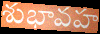
శుభావహ